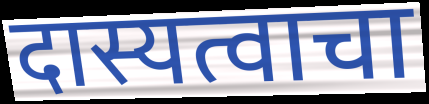
दास्यत्वाचा